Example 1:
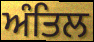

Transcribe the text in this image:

ਅੰਤਿਲ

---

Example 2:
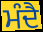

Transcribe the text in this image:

ਮੰਦੈ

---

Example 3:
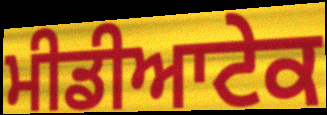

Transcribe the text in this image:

ਮੀਡੀਆਟੇਕ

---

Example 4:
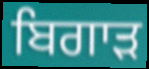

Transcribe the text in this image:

ਬਿਗਾੜ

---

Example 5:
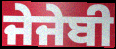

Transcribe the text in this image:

ਜੇਜੇਬੀ